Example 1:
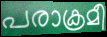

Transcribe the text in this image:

പരാക്രമീ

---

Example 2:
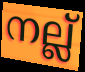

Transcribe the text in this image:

നല്ല്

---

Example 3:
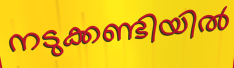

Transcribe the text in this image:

നടുക്കണ്ടിയിൽ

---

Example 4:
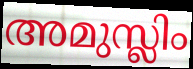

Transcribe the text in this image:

അമുസ്ലിം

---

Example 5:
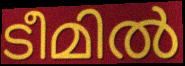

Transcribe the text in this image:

ടീമിൽ